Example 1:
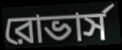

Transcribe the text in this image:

রোভার্স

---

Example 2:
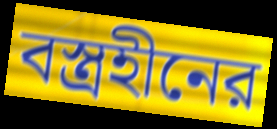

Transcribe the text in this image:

বস্ত্রহীনের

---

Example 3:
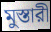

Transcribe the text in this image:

মুস্তারী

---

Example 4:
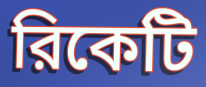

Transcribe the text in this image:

রিকেটি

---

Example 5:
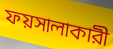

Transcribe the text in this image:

ফয়সালাকারী